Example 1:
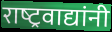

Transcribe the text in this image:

राष्ट्रवाद्यांनी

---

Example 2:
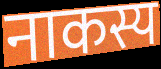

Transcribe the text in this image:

नाकस्य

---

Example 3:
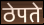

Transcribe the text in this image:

ठेपते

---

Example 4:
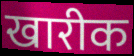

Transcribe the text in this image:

खारीक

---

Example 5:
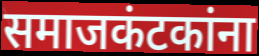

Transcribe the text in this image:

समाजकंटकांना